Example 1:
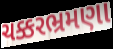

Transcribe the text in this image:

ચક્કરભ્રમણા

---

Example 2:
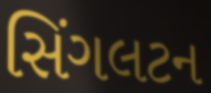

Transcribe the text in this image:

સિંગલટન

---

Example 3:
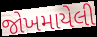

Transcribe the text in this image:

જોખમાયેલી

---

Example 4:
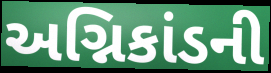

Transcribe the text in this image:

અગ્નિકાંડની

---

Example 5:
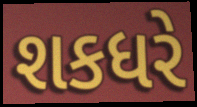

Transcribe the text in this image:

શકધરે